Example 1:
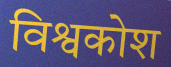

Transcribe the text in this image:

विश्वकोश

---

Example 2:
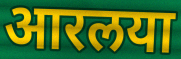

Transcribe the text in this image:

आरलया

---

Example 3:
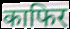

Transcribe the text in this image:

काफिर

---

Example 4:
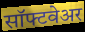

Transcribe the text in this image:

सॉफ्टवेअर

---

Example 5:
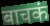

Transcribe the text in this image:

बाचकं